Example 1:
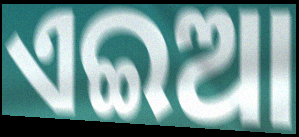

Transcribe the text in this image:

ଏଇଆ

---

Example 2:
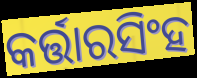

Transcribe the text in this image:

କର୍ତ୍ତାରସିଂହ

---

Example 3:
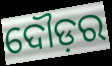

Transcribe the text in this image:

ଦୌଡ଼ର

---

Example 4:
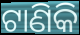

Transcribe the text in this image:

ଟାଣିକି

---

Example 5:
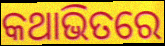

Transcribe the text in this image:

କଥାଭିତରେ